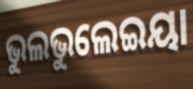
ଭୁଲଭୁଲେଇୟା